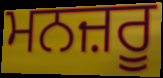
ਮਨਜ਼ਰੂ